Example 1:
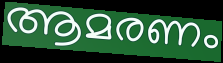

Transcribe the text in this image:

ആമരണം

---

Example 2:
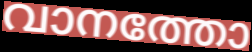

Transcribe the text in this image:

വാനത്തോ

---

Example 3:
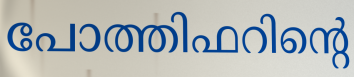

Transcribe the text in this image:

പോത്തിഫറിന്റെ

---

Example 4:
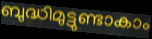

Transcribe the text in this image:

ബുദ്ധിമുട്ടുണ്ടാകാം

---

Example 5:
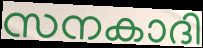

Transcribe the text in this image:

സനകാദി